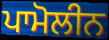
ਪਾਮੋਲੀਨ